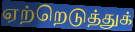
ஏற்றெடுத்துக்